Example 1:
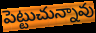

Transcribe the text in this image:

పెట్టుచున్నావు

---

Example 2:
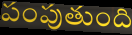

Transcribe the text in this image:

పంపుతుంది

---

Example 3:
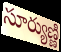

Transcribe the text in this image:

సూర్యుణ్ణి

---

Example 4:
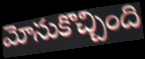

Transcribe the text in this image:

మోసుకొచ్చింది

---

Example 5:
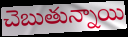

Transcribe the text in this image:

చెబుతున్నాయి